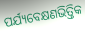
ପର୍ଯ୍ୟବେକ୍ଷଣଭିତ୍ତିକ